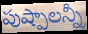
పుష్పాలన్నీ